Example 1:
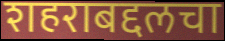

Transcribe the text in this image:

शहराबद्दलचा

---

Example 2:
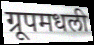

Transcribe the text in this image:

ग्रूपमधली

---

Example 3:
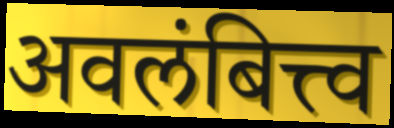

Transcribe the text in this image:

अवलंबित्त्व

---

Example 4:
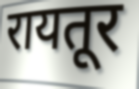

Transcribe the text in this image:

रायतूर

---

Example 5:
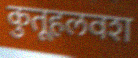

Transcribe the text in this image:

कुतूहलवश